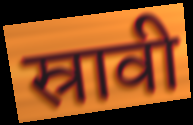
स्रावी